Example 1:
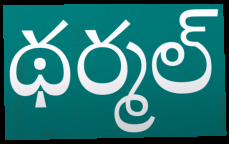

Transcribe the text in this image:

థర్మల్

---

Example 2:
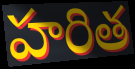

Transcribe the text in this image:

హరిత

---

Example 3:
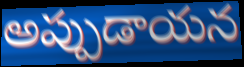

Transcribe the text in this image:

అప్పుడాయన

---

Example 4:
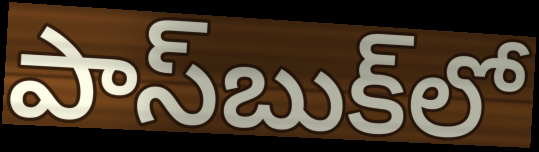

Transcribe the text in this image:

పాస్‌బుక్‌లో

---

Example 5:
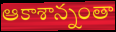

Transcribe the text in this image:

ఆకాశాన్నంతా